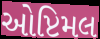
ઓપ્ટિમલ